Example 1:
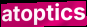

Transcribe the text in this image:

atoptics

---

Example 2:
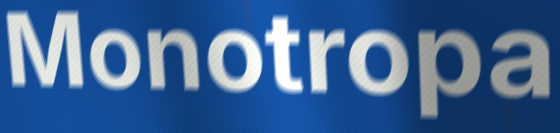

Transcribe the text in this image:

Monotropa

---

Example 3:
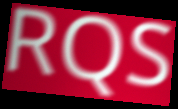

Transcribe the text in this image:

RQS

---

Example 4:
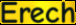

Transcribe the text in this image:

Erech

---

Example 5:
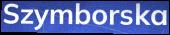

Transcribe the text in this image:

Szymborska